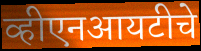
व्हीएनआयटीचे